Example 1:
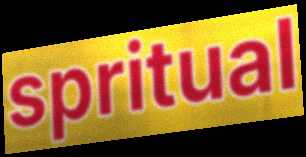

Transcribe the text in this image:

spritual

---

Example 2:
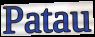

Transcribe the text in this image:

Patau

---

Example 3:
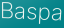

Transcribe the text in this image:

Baspa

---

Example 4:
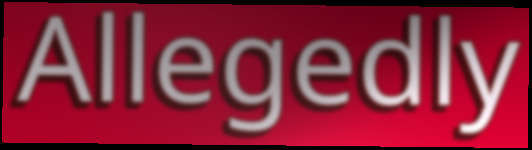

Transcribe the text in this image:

Allegedly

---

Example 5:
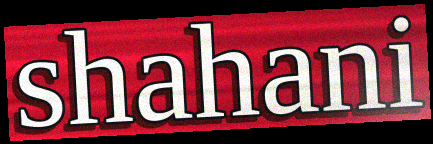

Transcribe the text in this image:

shahani